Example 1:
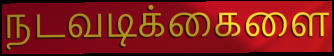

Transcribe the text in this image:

நடவடிக்கைளை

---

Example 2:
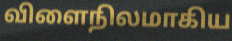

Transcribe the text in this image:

விளைநிலமாகிய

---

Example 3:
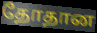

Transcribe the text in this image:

தோதான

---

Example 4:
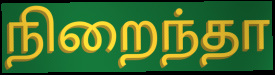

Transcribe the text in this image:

நிறைந்தா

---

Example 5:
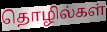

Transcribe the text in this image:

தொழில்கள்